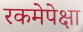
रकमेपेक्षा